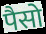
पैसो